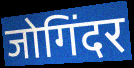
जोगिंदर